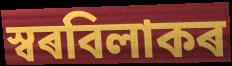
স্বৰবিলাকৰ